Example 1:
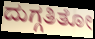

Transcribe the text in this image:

ದುಗ್ಗತಿತೋ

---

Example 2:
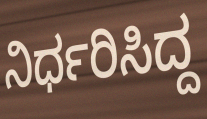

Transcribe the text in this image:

ನಿರ್ಧರಿಸಿದ್ದ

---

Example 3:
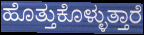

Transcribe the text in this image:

ಹೊತ್ತುಕೊಳ್ಳುತ್ತಾರೆ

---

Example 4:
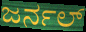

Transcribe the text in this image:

ಜರ್ನಲ್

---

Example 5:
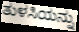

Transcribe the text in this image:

ತುಳಸಿಯನ್ನು